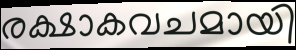
രക്ഷാകവചമായി